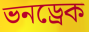
ভনড্রেক